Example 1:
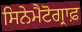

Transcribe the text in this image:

ਸਿਨੇਮੈਟੋਗ੍ਰਾਫ਼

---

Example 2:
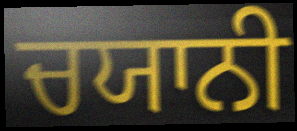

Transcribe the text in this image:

ਚਯਾਨੀ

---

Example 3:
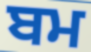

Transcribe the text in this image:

ਬਮ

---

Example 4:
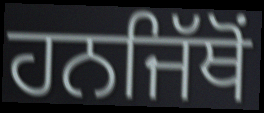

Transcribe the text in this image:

ਹਨਜਿੱਥੋਂ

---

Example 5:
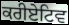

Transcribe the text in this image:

ਕਰੀਏਟਿਵ